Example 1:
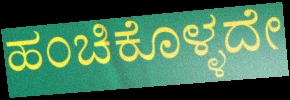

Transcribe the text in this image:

ಹಂಚಿಕೊಳ್ಳದೇ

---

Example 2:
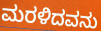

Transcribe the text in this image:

ಮರಳಿದವನು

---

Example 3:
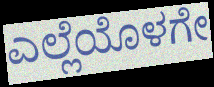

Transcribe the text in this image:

ಎಲ್ಲೆಯೊಳಗೇ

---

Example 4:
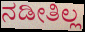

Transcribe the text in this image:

ನಡೀತಿಲ್ಲ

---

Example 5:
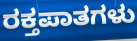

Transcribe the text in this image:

ರಕ್ತಪಾತಗಳು